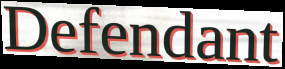
Defendant